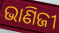
ଭାଣିଜୀ